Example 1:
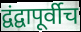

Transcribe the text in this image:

द्वंद्वापूर्वीच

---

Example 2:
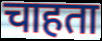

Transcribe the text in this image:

चाहता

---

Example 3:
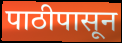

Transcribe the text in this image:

पाठीपासून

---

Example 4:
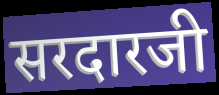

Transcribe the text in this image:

सरदारजी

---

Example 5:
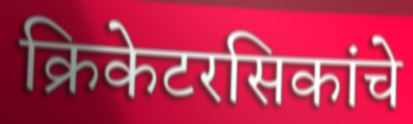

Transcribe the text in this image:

क्रिकेटरसिकांचे